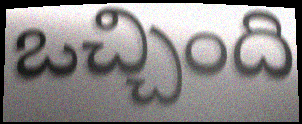
ఒచ్చింది